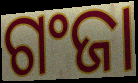
ଗଂଜା